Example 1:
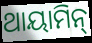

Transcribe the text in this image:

ଥାୟାମିନ୍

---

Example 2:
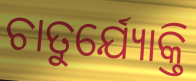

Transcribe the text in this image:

ଚାତୁର୍ଯ୍ୟୋକ୍ତି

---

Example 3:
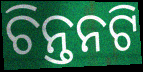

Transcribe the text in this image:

ଚିନ୍ତନଟି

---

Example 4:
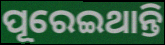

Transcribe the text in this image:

ପୂରେଇଥାନ୍ତି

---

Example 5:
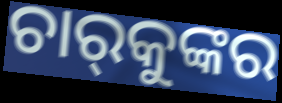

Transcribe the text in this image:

ଚାର୍‌କୁଙ୍କର